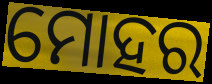
ମୋହର